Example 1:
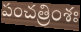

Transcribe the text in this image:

పంచత్రింశః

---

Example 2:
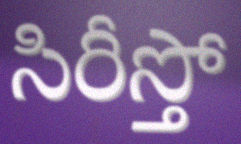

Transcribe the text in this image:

సిరీస్తో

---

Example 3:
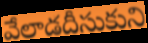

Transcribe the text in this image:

వేలాడదీసుకుని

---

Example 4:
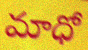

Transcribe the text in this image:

మాధో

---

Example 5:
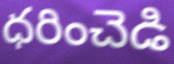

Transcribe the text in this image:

ధరించెడి